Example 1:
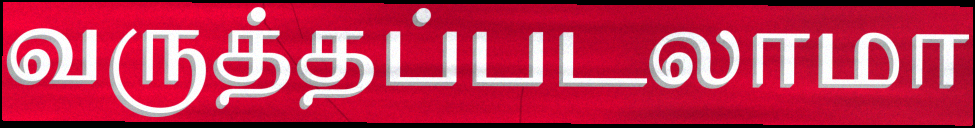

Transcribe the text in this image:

வருத்தப்படலாமா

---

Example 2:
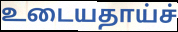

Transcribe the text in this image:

உடையதாய்ச்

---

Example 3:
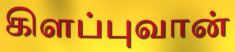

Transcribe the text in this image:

கிளப்புவான்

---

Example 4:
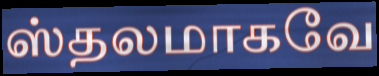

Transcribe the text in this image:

ஸ்தலமாகவே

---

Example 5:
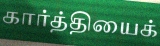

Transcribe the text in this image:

கார்த்தியைக்